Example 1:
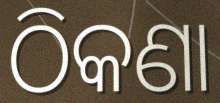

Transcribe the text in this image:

ଠିକଣା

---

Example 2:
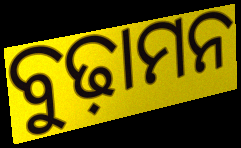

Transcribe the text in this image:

ବୁଢ଼ାମନ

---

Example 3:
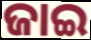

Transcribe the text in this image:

ଜାଇ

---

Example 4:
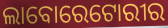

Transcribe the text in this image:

ଲାବୋରେଟୋରୀର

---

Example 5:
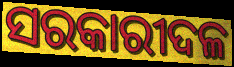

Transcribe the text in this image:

ସରକାରୀଦଳ